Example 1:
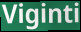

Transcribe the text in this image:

Viginti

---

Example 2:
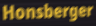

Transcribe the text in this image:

Honsberger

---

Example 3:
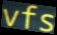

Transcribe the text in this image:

vfs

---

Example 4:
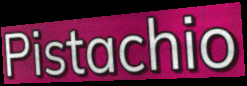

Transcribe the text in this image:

Pistachio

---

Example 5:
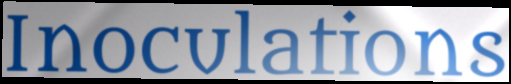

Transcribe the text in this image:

Inoculations